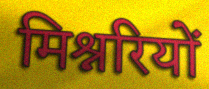
मिश्नरियों